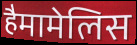
हैमामेलिस